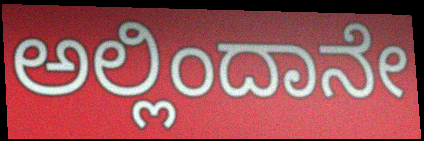
ಅಲ್ಲಿಂದಾನೇ